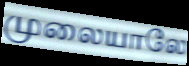
முலையாலே